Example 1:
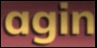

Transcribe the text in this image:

agin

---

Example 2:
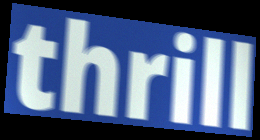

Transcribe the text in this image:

thrill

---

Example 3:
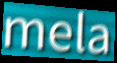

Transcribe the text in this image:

mela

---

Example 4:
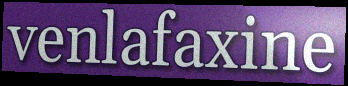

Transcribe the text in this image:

venlafaxine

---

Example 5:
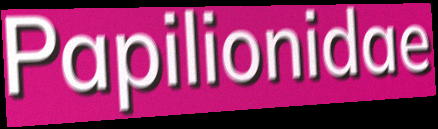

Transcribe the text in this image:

Papilionidae